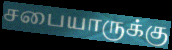
சபையாருக்கு